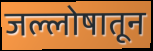
जल्लोषातून